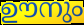
ഊനും